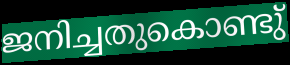
ജനിച്ചതുകൊണ്ടു്